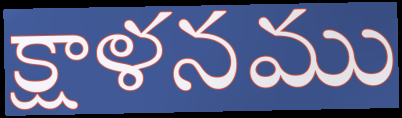
క్షాళనము